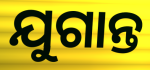
ଯୁଗାନ୍ତ